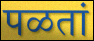
पळतां